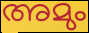
അമും